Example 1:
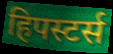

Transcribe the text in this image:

हिपस्टर्स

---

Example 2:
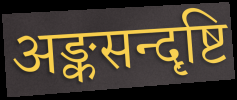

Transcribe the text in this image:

अङ्कसन्दृष्टि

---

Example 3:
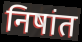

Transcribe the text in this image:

निषांत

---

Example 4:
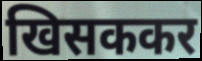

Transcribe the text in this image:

खिसककर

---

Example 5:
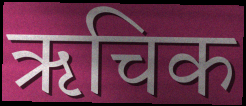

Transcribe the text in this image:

ऋचिक